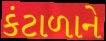
કંટાળાને